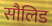
सौलिड